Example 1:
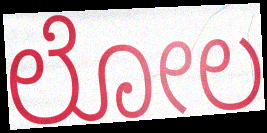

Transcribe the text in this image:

ಲೋಲ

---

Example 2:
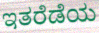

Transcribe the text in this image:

ಇತರೆಡೆಯ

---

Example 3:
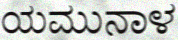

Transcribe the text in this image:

ಯಮುನಾಳ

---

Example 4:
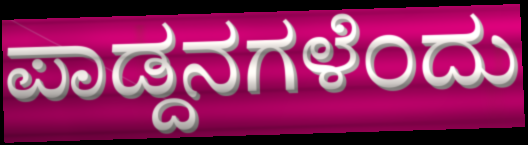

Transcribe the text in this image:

ಪಾಡ್ದನಗಳೆಂದು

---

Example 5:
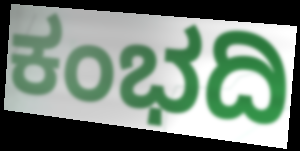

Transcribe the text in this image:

ಕಂಭದಿ